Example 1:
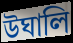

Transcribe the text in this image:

উঘালি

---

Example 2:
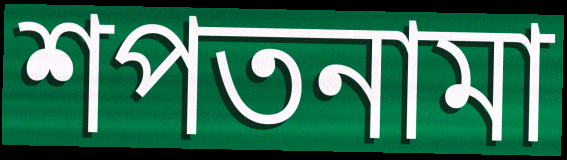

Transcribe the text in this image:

শপতনামা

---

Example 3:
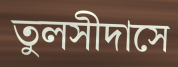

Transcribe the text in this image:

তুলসীদাসে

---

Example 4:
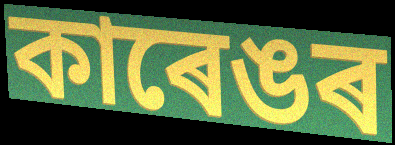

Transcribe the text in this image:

কাৰেঙৰ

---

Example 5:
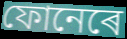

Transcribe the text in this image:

ফোনেৰে